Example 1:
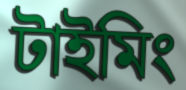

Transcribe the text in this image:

টাইমিং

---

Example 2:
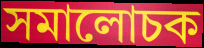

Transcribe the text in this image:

সমালোচক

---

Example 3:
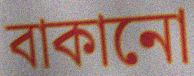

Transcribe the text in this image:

বাকানো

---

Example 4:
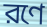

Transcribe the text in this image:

রণে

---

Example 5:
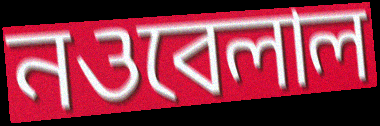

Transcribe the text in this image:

নওবেলাল